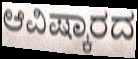
ಆವಿಷ್ಕಾರದ